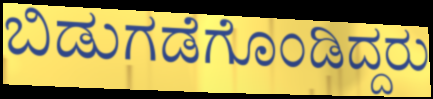
ಬಿಡುಗಡೆಗೊಂಡಿದ್ದರು